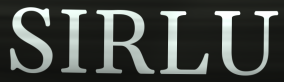
SIRLU